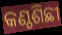
କଣ୍ଠଶିଛୀ